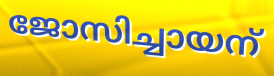
ജോസിച്ചായന്